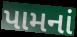
પામનાં